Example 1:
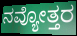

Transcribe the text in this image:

ನವ್ಯೋತ್ತರ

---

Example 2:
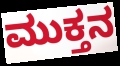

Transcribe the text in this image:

ಮುಕ್ತನ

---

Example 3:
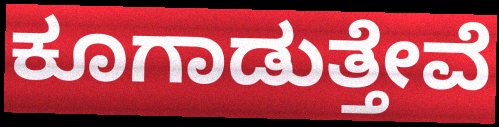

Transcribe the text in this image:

ಕೂಗಾಡುತ್ತೇವೆ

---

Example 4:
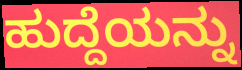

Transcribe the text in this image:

ಹುದ್ದೆಯನ್ನು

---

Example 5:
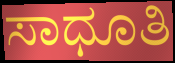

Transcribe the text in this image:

ಸಾಧೂತಿ